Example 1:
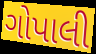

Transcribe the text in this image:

ગોપાલી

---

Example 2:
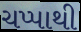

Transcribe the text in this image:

ચપ્પાથી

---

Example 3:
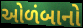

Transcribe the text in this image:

ઓળંબાનો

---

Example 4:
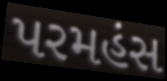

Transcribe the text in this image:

પરમહંસ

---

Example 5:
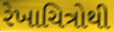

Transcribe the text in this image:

રેખાચિત્રોથી